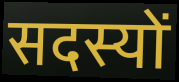
सदस्यों